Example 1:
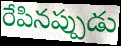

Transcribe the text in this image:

రేపినప్పుడు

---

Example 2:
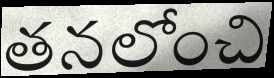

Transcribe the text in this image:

తనలోంచి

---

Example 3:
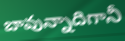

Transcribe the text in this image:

బావున్నాదిగానీ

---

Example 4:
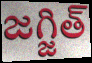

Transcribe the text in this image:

జగ్జిత్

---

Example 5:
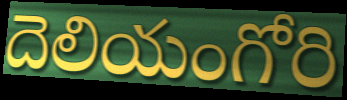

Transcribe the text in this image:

దెలియంగోరి